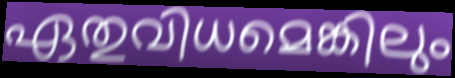
ഏതുവിധമെങ്കിലും